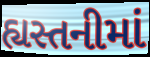
હ્યસ્તનીમાં